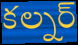
కల్నర్